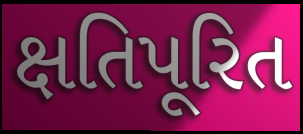
ક્ષતિપૂરિત